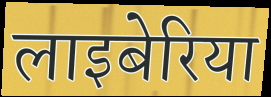
लाइबेरिया